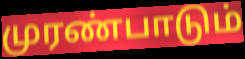
முரண்பாடும்